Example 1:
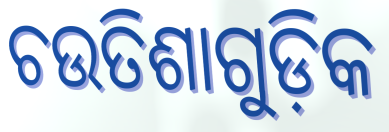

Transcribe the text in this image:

ଚଉତିଶାଗୁଡ଼ିକ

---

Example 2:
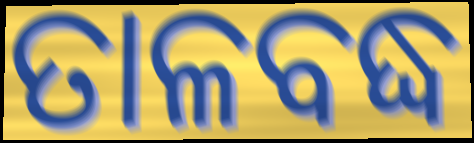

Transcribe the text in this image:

ତାଳବଦ୍ଧ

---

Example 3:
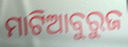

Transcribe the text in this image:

ମାଟିଆବୁରୁଜ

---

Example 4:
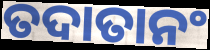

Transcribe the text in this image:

ତଦାତାନଂ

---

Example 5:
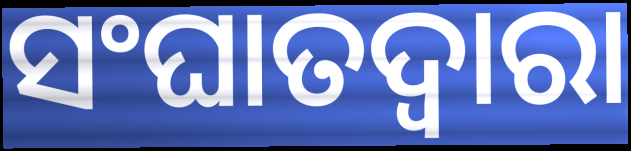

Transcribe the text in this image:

ସଂଘାତଦ୍ୱାରା